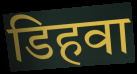
डिहवा